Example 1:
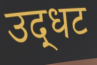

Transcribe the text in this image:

उद्धट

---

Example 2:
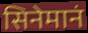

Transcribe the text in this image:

सिनेमानं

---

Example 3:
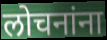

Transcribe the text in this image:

लोचनांना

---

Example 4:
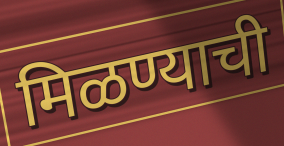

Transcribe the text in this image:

मिळण्याची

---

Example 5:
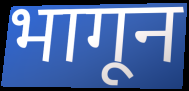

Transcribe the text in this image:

भागून